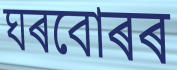
ঘৰবোৰৰ